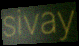
sivay